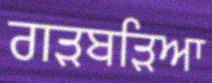
ਗੜਬੜਿਆ